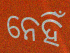
ନେହିଁ